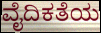
ವೈದಿಕತೆಯ